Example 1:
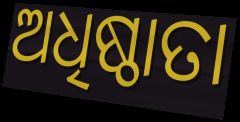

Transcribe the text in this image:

ଅଧିଷ୍ଠାତା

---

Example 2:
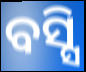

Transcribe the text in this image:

ବସ୍ସି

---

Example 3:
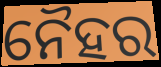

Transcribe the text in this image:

ନୈହର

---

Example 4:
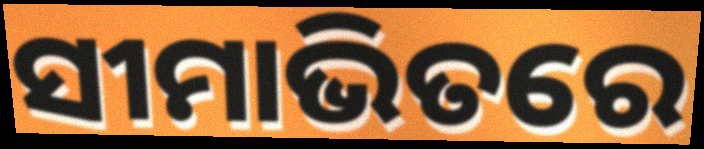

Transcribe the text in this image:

ସୀମାଭିତରେ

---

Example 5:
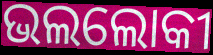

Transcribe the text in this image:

ଭଲଲୋକୀ